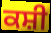
ਕਸ਼ੀ